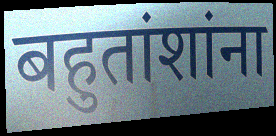
बहुतांशांना